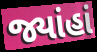
જ્યાંહાં